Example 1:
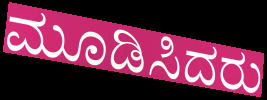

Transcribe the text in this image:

ಮೂಡಿಸಿದರು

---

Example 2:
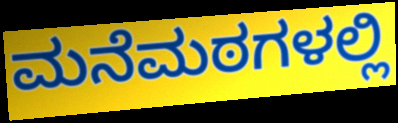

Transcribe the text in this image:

ಮನೆಮಠಗಳಲ್ಲಿ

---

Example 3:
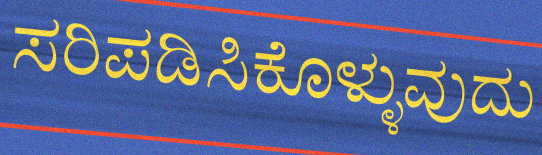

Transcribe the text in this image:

ಸರಿಪಡಿಸಿಕೊಳ್ಳುವುದು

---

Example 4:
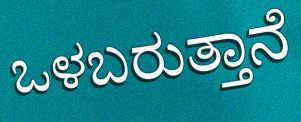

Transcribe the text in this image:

ಒಳಬರುತ್ತಾನೆ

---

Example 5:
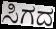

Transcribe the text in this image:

ಸಿಗದ